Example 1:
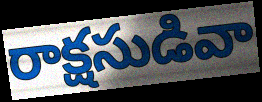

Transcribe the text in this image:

రాక్షసుడివా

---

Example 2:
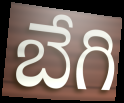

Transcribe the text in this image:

బేగి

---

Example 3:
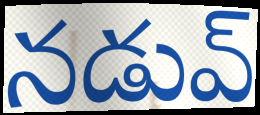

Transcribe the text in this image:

నడువ్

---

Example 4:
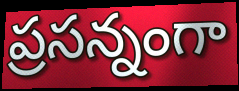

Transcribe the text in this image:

ప్రసన్నంగా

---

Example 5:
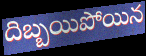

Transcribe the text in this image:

దిబ్బయిపోయిన